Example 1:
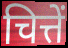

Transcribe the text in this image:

चित्तें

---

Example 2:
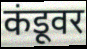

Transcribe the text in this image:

कंडूवर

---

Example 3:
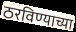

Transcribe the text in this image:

ठरविण्याच्या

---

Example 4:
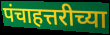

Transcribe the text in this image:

पंचाहत्तरीच्या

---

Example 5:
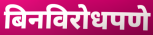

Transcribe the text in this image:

बिनविरोधपणे